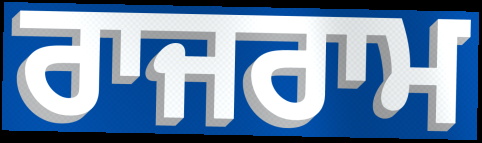
ਰਾਜਰਾਮ